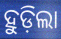
ହୁଡ଼ିଲା